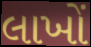
લાખોં